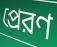
প্রেরণ